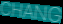
CHANG